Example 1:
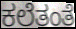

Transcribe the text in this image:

ಕಲೆತಂತೆ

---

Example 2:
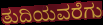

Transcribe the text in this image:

ತುದಿಯವರೆಗು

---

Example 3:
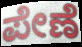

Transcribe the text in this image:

ಪೇಣೆ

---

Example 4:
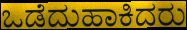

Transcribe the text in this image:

ಒಡೆದುಹಾಕಿದರು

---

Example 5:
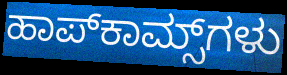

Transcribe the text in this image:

ಹಾಪ್‌ಕಾಮ್ಸ್‌ಗಳು